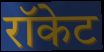
रॉकेट